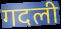
गदली